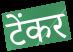
टेंकर